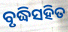
ବୃଦ୍ଧିସହିତ